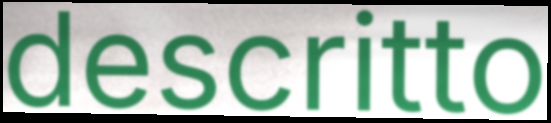
descritto